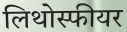
लिथोस्फीयर